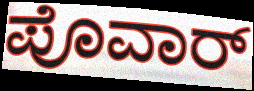
ಪೊವಾರ್